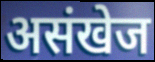
असंखेज